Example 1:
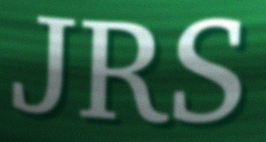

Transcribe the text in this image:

JRS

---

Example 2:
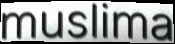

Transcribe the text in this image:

muslima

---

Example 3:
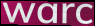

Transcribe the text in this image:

warc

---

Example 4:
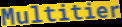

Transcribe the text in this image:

Multitier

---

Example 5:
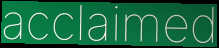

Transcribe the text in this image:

acclaimed